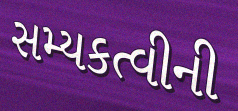
સમ્યકત્વીની